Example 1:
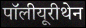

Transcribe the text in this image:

पॉलीयूरीथेन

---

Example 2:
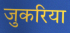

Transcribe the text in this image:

जुकरिया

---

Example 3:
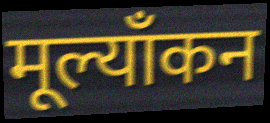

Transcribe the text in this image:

मूल्याँकन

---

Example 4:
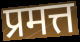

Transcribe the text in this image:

प्रमत्त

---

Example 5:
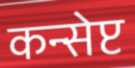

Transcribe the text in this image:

कन्सेप्ट